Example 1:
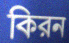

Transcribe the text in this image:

কিরন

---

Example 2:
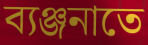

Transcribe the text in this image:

ব্যঞ্জনাতে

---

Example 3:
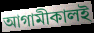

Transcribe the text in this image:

আগামীকালই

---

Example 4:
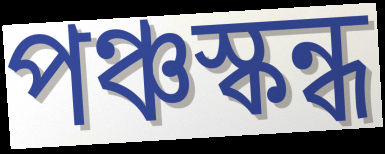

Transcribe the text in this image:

পঞ্চস্কন্ধ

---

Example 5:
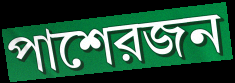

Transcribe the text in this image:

পাশেরজন